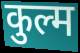
कुल्म